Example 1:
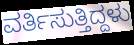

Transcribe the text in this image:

ವರ್ತಿಸುತ್ತಿದ್ದಳು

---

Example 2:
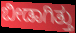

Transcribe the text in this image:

ಬೀಡಾಗಿತ್ತು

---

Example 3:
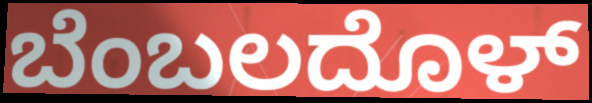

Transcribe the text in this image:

ಬೆಂಬಲದೊಳ್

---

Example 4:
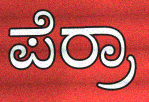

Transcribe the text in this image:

ಪೆರ್ರಾ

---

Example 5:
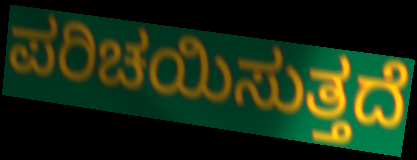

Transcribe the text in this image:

ಪರಿಚಯಿಸುತ್ತದೆ